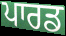
ਪਾਰਡ